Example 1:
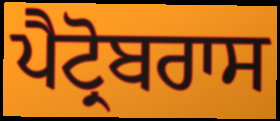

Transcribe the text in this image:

ਪੈਟ੍ਰੋਬਰਾਸ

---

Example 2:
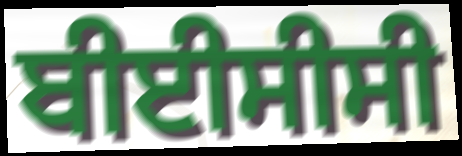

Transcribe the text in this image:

ਬੀਈਸੀਸੀ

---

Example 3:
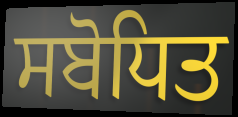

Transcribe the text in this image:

ਸਬੋਧਿਤ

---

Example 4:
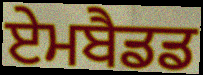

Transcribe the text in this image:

ਏਮਬੈਡਡ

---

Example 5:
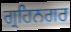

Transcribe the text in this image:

ਗ੍ਰਹਿਨਗਰ